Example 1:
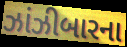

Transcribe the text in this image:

ઝાંઝીબારના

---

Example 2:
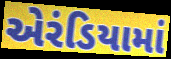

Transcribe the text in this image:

એરંડિયામાં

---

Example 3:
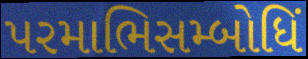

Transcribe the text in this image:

પરમાભિસમ્બોધિં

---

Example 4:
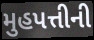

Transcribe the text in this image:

મુહપત્તીની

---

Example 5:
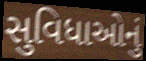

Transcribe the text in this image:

સુવિધાઓનું